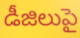
డీజిలుపై